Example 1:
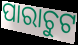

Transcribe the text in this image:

ପାରାଚୁଟ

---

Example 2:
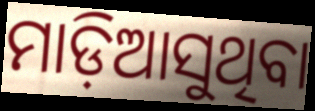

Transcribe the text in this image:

ମାଡ଼ିଆସୁଥିବା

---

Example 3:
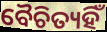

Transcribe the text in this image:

ବୈଚିତ୍ୟହିଁ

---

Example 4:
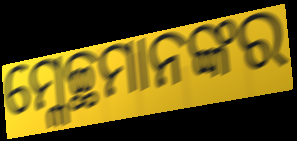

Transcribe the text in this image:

ମ୍ଳେଚ୍ଛମାନଙ୍କର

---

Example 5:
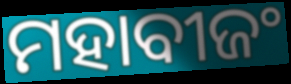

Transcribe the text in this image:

ମହାବୀଜଂ